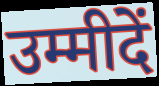
उम्मीदें